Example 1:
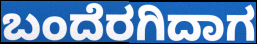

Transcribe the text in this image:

ಬಂದೆರಗಿದಾಗ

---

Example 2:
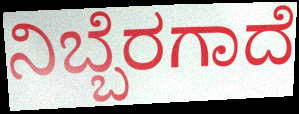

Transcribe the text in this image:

ನಿಬ್ಬೆರಗಾದೆ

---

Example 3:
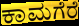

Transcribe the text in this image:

ಕಾಮಗೆರೆ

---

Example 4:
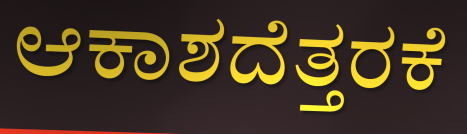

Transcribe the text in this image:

ಆಕಾಶದೆತ್ತರಕೆ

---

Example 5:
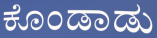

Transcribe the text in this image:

ಕೊಂಡಾಡು